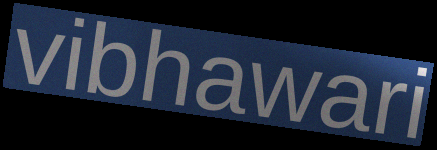
vibhawari